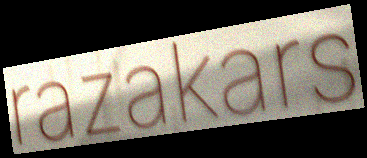
razakars